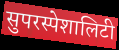
सुपरस्पेशालिटी